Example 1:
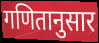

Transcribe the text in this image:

गणितानुसार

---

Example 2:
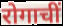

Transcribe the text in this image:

रोगाचीं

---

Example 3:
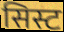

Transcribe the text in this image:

सिस्ट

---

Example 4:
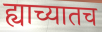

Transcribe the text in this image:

ह्याच्यातच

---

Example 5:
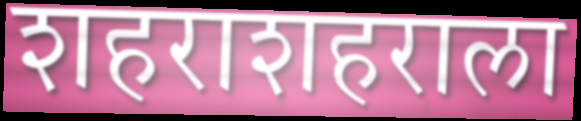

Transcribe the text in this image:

शहराशहराला